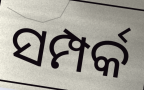
ସମ୍ପର୍କ